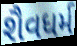
શૈવધર્મ